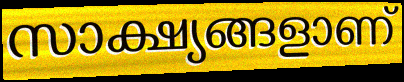
സാക്ഷ്യങ്ങളാണ്